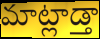
మాట్లాడ్తా